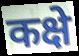
कक्षे